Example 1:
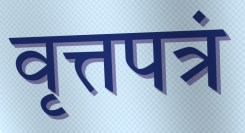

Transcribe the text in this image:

वृत्तपत्रं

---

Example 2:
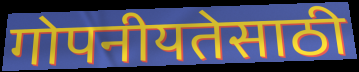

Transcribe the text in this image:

गोपनीयतेसाठी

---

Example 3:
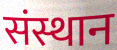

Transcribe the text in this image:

संस्थान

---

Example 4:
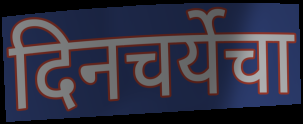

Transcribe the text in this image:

दिनचर्येचा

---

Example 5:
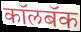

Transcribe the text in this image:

कॉलबॅक